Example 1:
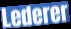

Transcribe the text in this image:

Lederer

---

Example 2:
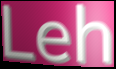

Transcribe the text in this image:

Leh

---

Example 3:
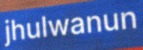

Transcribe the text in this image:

jhulwanun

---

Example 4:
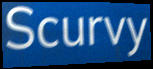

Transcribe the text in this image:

Scurvy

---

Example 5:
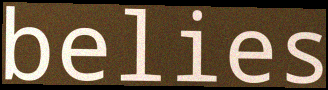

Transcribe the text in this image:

belies